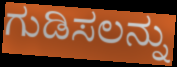
ಗುಡಿಸಲನ್ನು